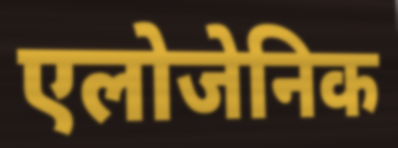
एलोजेनिक